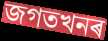
জগতখনৰ